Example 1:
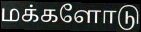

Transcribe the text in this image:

மக்களோடு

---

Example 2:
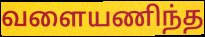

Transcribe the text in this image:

வளையணிந்த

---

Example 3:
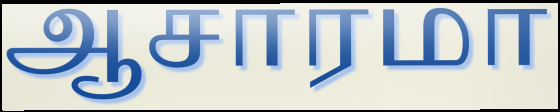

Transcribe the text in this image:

ஆசாரமா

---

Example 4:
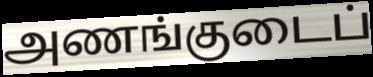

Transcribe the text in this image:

அணங்குடைப்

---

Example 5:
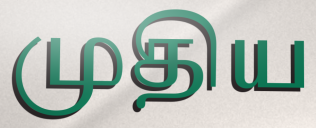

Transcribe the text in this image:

முதிய